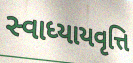
સ્વાધ્યાયવૃત્તિ